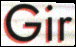
Gir